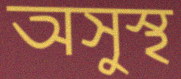
অসুস্থ